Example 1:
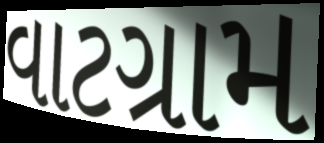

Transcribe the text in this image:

વાટગ્રામ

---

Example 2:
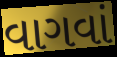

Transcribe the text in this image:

વાગવાં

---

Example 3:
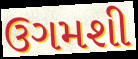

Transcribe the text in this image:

ઉગમશી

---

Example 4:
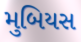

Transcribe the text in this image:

મુબિયસ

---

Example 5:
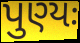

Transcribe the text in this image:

પુણ્યઃ